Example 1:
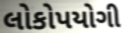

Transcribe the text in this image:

લોકોપયોગી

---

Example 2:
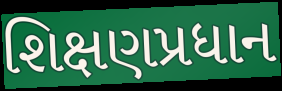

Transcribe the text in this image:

શિક્ષણપ્રધાન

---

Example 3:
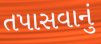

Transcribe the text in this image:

તપાસવાનું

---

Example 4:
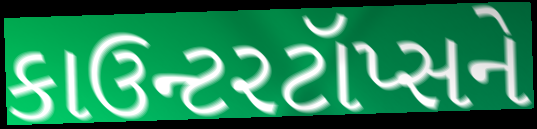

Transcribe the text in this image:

કાઉન્ટરટૉપ્સને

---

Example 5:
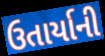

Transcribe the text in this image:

ઉતાર્યાની